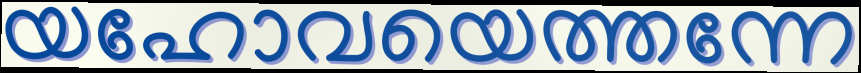
യഹോവയെത്തന്നേ